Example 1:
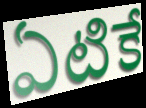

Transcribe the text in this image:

ఏటికే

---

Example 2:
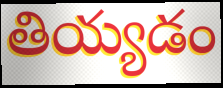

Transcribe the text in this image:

తియ్యడం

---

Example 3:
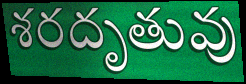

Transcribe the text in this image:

శరదృతువు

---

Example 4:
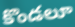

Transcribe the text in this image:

కొండలూ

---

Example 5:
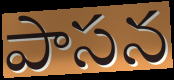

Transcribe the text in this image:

పాసన